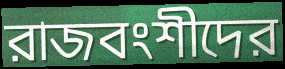
রাজবংশীদের